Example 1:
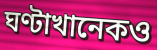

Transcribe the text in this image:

ঘণ্টাখানেকও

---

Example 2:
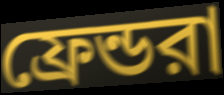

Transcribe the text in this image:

ফ্রেন্ডরা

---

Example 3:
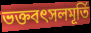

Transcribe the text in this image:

ভক্তবৎসলমূর্তি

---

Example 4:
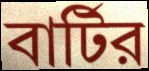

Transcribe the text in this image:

বার্টির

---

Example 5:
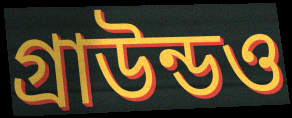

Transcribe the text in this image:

গ্রাউন্ডও